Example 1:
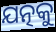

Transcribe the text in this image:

ଯତ୍ନକୁ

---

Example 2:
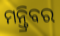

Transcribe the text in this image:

ମନ୍ତ୍ରିବର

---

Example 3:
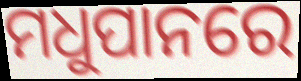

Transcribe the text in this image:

ମଧୁପାନରେ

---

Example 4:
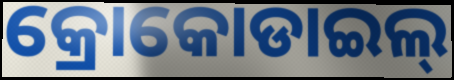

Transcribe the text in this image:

କ୍ରୋକୋଡାଇଲ୍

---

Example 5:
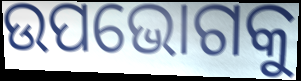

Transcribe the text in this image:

ଉପଭୋଗକୁ